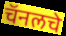
चॅनलचे